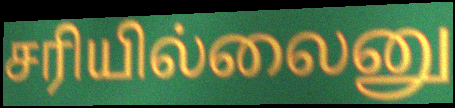
சரியில்லைனு